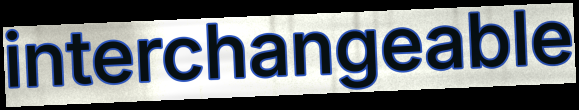
interchangeable